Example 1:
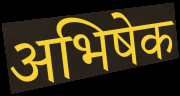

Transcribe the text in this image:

अभिषेक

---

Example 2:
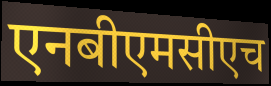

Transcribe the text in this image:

एनबीएमसीएच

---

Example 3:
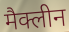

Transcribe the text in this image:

मैक्लीन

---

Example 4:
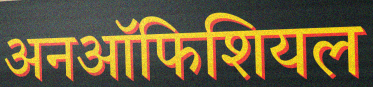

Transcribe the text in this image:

अनऑफिशियल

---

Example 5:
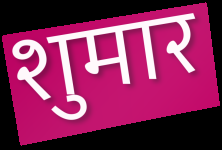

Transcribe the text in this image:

शुमार